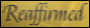
Reaffirmed